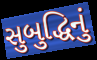
સુબુદ્ધિનું